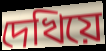
দেখিয়ে